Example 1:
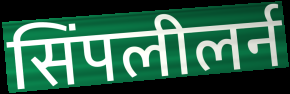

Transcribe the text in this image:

सिंपलीलर्न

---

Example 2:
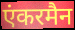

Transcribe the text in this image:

एंकरमैन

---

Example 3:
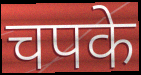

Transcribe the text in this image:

चपके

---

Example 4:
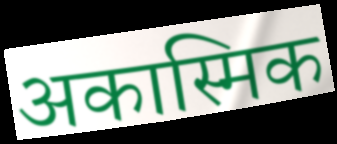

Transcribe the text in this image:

अकास्मिक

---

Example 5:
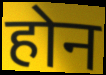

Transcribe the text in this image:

होन